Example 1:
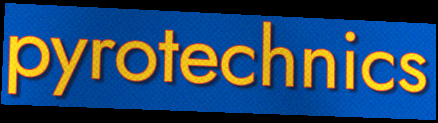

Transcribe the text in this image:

pyrotechnics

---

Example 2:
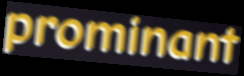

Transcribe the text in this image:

prominant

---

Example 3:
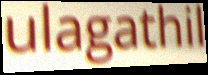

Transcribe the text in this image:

ulagathil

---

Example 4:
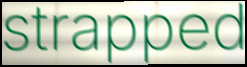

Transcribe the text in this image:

strapped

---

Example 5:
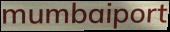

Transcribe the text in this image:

mumbaiport